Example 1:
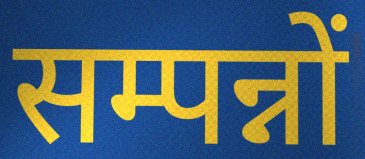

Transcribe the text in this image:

सम्पन्नों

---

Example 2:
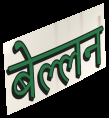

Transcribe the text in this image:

बेल्लन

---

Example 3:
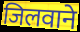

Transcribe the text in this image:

जिलवाने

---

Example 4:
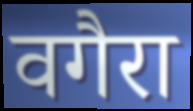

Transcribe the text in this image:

वगैरा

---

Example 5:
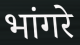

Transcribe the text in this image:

भांगरे